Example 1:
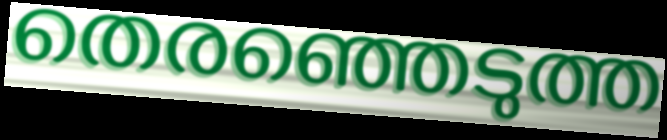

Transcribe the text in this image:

തെരഞ്ഞെടുത്ത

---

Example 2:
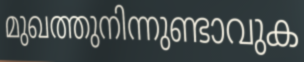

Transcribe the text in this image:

മുഖത്തുനിന്നുണ്ടാവുക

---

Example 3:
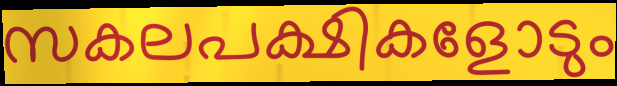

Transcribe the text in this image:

സകലപക്ഷികളോടും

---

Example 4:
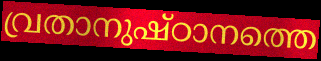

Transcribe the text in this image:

വ്രതാനുഷ്ഠാനത്തെ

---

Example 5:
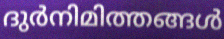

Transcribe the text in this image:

ദുർനിമിത്തങ്ങൾ